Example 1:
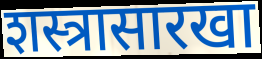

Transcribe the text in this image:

शस्त्रासारखा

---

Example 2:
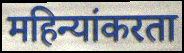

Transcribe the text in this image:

महिन्यांकरता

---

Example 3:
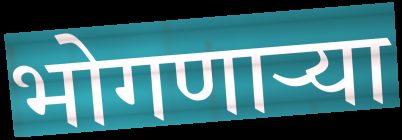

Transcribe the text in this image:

भोगणाऱ्या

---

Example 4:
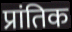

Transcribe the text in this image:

प्रांतिक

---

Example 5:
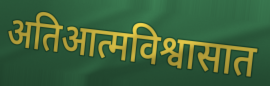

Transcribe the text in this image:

अतिआत्मविश्वासात